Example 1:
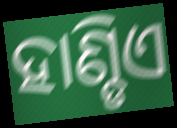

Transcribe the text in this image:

ହାଣ୍ଡିଏ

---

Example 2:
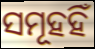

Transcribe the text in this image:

ସମୂହହିଁ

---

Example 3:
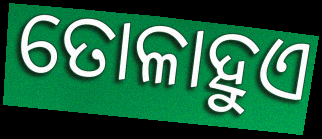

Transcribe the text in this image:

ତୋଳାହୁଏ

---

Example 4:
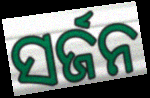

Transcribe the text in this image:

ସର୍ଜନ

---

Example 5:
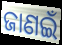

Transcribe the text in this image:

ଜାଣଇଁ